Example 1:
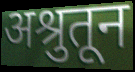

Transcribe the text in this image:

अश्रुतून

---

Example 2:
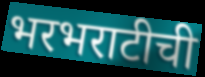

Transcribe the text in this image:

भरभराटीची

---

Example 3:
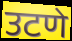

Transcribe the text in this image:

उटणे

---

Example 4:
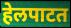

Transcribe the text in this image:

हेलपाटत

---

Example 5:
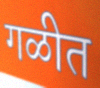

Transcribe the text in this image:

गळीत